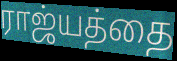
ராஜ்யத்தை